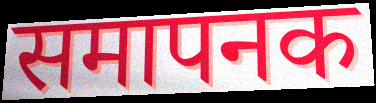
समापनक